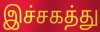
இச்சகத்து